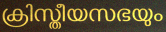
ക്രിസ്തീയസഭയും